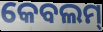
କେବଲମ୍